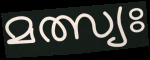
മത്സ്യഃ